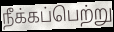
நீக்கப்பெற்று